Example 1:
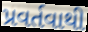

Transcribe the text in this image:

પ્રવર્તવાથી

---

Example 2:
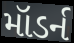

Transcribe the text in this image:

મૉડર્ન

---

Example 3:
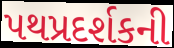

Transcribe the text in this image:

પથપ્રદર્શકની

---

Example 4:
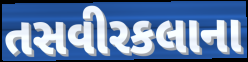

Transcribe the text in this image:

તસવીરકલાના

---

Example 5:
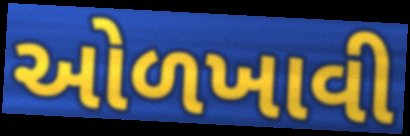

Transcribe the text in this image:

ઓળખાવી